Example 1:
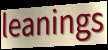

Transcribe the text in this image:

leanings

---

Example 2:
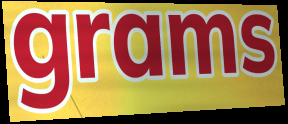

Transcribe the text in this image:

grams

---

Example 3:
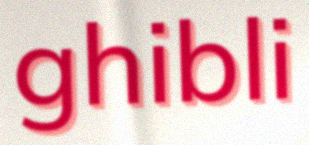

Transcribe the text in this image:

ghibli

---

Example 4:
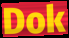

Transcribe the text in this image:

Dok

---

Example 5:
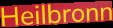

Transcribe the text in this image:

Heilbronn